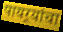
पायर्यांचा